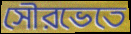
সৌরভেতে